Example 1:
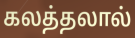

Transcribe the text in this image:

கலத்தலால்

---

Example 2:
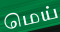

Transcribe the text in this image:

மெய்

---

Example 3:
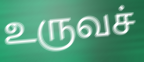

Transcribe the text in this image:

உருவச்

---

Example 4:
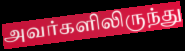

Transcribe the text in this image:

அவர்களிலிருந்து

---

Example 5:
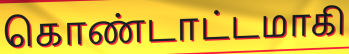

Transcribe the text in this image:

கொண்டாட்டமாகி